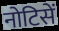
नोटिसें